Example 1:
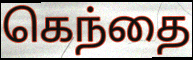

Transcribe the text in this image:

கெந்தை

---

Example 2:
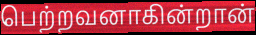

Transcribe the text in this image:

பெற்றவனாகின்றான்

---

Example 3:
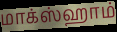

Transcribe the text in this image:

மாக்ஸ்ஹாம்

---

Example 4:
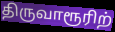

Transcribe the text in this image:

திருவாரூரிற்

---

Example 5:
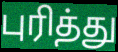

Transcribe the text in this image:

புரித்து